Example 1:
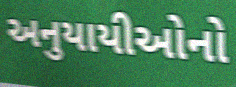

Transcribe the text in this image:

અનુયાયીઓનો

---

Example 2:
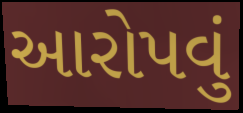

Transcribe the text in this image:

આરોપવું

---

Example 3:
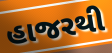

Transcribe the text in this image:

હાજરથી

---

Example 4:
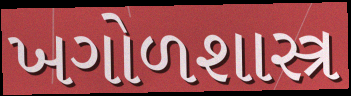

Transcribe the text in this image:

ખગોળશાસ્ત્ર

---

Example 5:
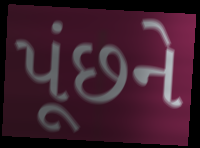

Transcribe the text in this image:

પૂંછને